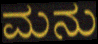
ಮನು